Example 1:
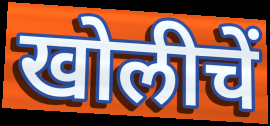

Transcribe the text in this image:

खोलीचें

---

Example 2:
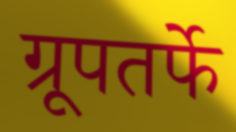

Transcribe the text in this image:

ग्रूपतर्फे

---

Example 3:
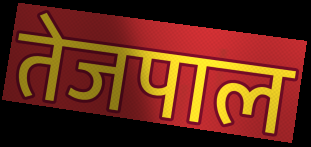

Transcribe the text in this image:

तेजपाल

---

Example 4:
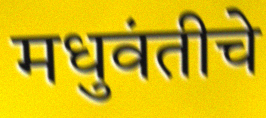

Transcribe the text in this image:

मधुवंतीचे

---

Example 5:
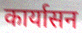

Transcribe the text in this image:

कार्यासन